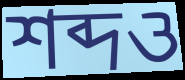
শব্দও